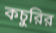
কচুরির